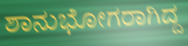
ಶಾನುಭೋಗರಾಗಿದ್ದ